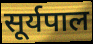
सूर्यपाल